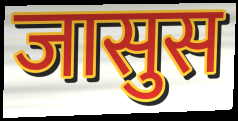
जासुस